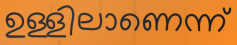
ഉള്ളിലാണെന്ന്